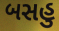
બસહુ